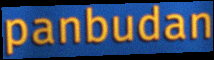
panbudan